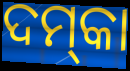
ଦମ୍‌କା